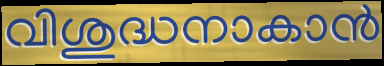
വിശുദ്ധനാകാൻ